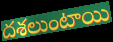
దశలుంటాయి